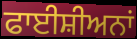
ਫਾਈਸ਼ੀਅਨਾਂ